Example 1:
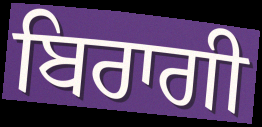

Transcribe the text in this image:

ਬਿਰਾਗੀ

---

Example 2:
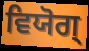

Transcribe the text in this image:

ਵਿਯੋਗ੍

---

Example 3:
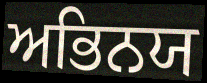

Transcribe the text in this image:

ਅਭਿਨਯ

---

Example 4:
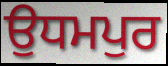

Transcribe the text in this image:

ਉਧਮਪੁਰ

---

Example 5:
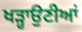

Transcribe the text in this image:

ਖੜ੍ਹਾਉਣੀਆਂ